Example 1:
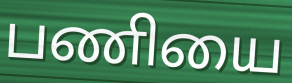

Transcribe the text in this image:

பணியை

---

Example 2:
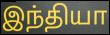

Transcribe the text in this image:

இந்தியா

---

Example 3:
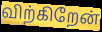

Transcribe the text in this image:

விற்கிறேன்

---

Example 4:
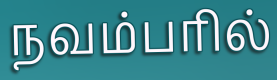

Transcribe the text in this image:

நவம்பரில்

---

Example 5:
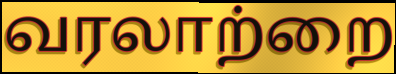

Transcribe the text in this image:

வரலாற்றை